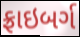
ફ્રાઇબર્ગ